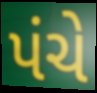
પંચે